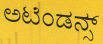
ಅಟೆಂಡನ್ಸ್